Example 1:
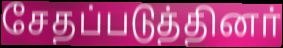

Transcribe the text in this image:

சேதப்படுத்தினர்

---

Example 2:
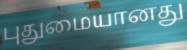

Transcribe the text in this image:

புதுமையானது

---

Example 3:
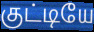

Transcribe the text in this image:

குட்டியே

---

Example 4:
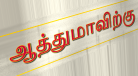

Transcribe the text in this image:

ஆத்துமாவிற்கு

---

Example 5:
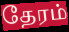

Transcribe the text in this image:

தேரம்